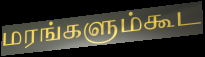
மரங்களும்கூட